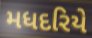
મધદરિયે